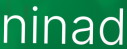
ninad